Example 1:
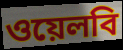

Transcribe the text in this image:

ওয়েলবি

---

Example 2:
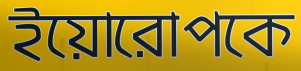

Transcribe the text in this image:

ইয়োরোপকে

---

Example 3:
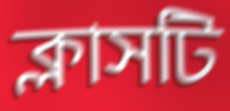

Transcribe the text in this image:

ক্লাসটি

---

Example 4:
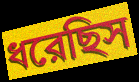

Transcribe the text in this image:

ধরেছিস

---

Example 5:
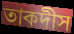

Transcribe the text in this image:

তাকদীস